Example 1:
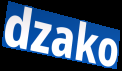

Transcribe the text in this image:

dzako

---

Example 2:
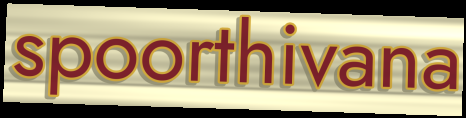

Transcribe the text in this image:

spoorthivana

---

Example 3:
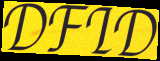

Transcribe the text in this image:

DFID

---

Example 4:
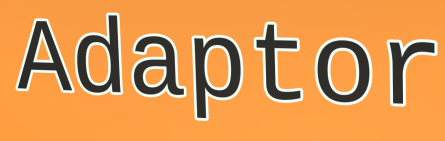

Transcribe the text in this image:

Adaptor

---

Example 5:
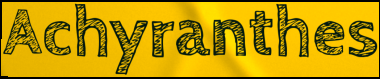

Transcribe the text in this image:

Achyranthes